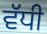
ਵੱਧੀ